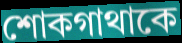
শোকগাথাকে